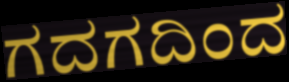
ಗದಗದಿಂದ